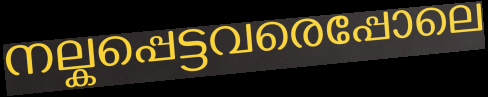
നല്കപ്പെട്ടവരെപ്പോലെ